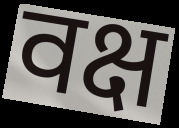
वक्ष